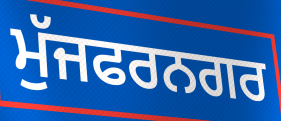
ਮੁੱਜਫਰਨਗਰ